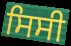
ਸਿਸੀ